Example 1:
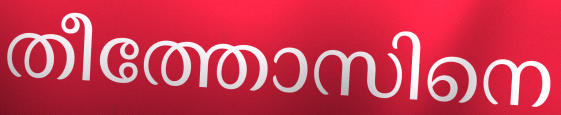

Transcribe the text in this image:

തീത്തോസിനെ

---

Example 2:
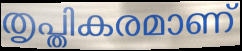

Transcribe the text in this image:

തൃപ്തികരമാണ്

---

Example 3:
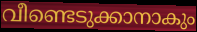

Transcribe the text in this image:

വീണ്ടെടുക്കാനാകും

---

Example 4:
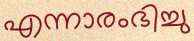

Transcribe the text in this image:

എന്നാരംഭിച്ചു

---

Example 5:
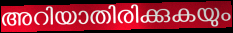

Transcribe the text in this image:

അറിയാതിരിക്കുകയും